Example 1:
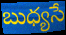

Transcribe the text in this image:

బుధ్యసే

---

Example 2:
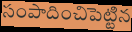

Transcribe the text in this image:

సంపాదించిపెట్టిన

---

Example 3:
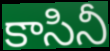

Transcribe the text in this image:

కాసినీ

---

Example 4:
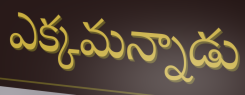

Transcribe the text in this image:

ఎక్కమన్నాడు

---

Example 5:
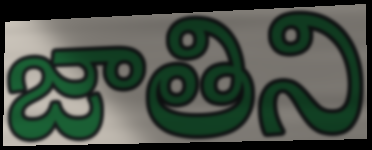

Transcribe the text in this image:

జాతిని